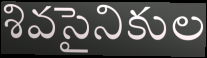
శివసైనికుల